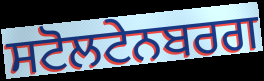
ਸਟੋਲਟੇਨਬਰਗ